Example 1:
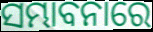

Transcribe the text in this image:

ସମ୍ଭାବନାରେ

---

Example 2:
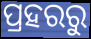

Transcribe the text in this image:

ପ୍ରହରରୁ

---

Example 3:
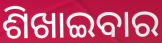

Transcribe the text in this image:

ଶିଖାଇବାର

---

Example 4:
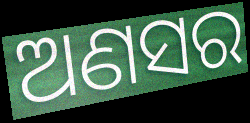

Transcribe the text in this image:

ଅଣସର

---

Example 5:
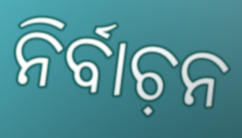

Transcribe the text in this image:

ନିର୍ବାଚ଼ନ